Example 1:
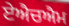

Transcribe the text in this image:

ਏਐਚਐਮ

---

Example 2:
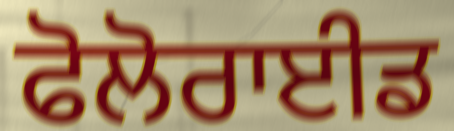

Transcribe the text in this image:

ਫੋਲੋਰਾਈਡ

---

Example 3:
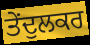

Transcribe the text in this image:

ਤੇਂਦੁਲਕਰ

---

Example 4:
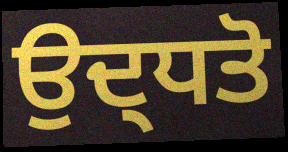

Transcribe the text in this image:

ਉਦ੍ਧਤੋ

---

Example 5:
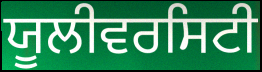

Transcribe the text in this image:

ਯੂਲੀਵਰਸਿਟੀ